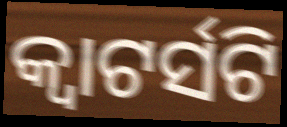
କ୍ୱାଟର୍ସଟି